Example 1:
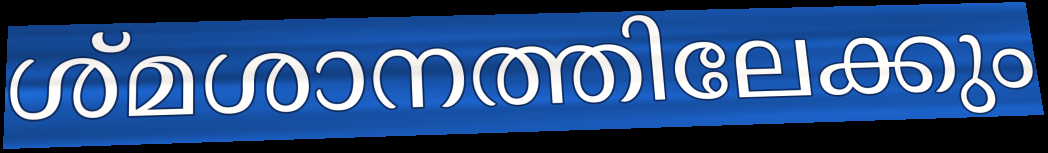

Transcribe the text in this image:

ശ്മശാനത്തിലേക്കും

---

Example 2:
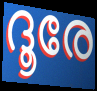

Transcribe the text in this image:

ദൂരേ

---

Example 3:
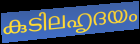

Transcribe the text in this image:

കുടിലഹൃദയം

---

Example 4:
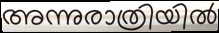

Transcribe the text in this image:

അന്നുരാത്രിയിൽ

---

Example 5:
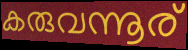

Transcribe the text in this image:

കരുവന്നൂര്